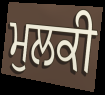
ਮੁਲਕੀ